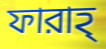
ফারাহ্